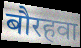
बौरहवा